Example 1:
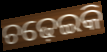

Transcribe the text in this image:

ଚଢ଼େଇକି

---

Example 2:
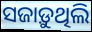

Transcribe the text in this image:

ସଜାଡ଼ୁଥିଲି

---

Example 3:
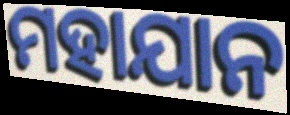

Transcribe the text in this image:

ମହାଯାନ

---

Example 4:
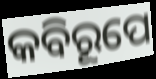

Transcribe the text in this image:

କବିରୂପେ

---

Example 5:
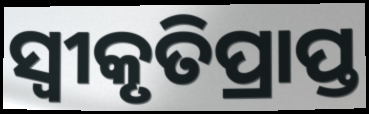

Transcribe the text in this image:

ସ୍ବୀକୃତିପ୍ରାପ୍ତ